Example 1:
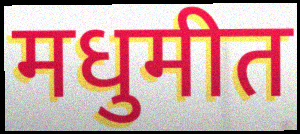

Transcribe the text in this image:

मधुमीत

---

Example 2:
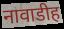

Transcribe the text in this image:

नावाडीह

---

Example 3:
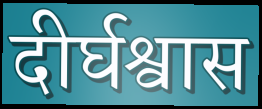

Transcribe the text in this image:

दीर्घश्वास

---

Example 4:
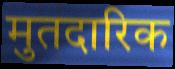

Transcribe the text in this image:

मुतदारिक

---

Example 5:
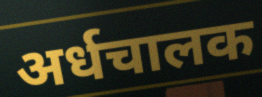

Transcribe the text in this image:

अर्धचालक